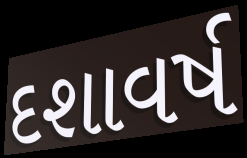
દશાવર્ષ